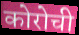
कोरोची